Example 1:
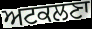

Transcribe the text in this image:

ਅਟਕਲਣਾ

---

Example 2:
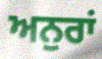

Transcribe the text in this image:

ਅਨੁਰਾਂ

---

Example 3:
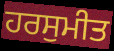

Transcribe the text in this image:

ਹਰਸੁਮੀਤ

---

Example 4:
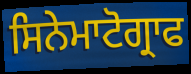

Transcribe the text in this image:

ਸਿਨੇਮਾਟੋਗ੍ਰਾਫ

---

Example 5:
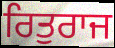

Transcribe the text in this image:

ਰਿਤੁਰਾਜ